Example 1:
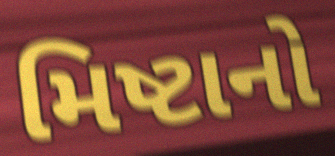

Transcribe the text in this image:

મિષ્ટાનો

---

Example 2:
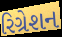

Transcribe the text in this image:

રિગ્રેશન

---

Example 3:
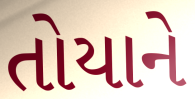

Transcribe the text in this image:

તોયાને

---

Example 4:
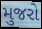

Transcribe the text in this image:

મુજરો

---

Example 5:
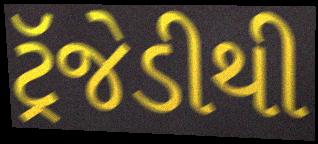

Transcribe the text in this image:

ટ્રૅજેડીથી